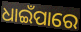
ଧାଇଁପାରେ